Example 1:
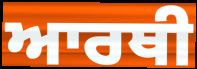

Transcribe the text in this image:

ਆਰਥੀ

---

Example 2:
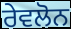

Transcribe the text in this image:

ਰੇਵਲੋਨ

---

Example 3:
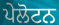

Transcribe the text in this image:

ਪੇਲੋਟਨ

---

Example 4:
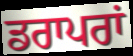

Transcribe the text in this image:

ਡਰਾਪਰਾਂ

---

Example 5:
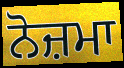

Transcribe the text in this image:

ਨੋਜ਼ਮਾ